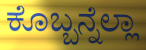
ಕೊಬ್ಬನ್ನೆಲ್ಲಾ